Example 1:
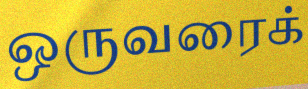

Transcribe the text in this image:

ஒருவரைக்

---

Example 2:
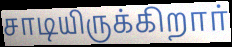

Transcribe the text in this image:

சாடியிருக்கிறார்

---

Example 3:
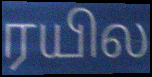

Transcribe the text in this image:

ரயில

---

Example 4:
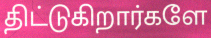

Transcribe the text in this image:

திட்டுகிறார்களே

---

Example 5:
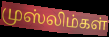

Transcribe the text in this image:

முஸ்லிம்கள்